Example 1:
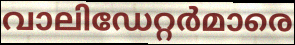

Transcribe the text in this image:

വാലിഡേറ്റർമാരെ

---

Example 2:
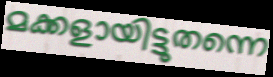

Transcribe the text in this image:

മക്കളായിട്ടുതന്നെ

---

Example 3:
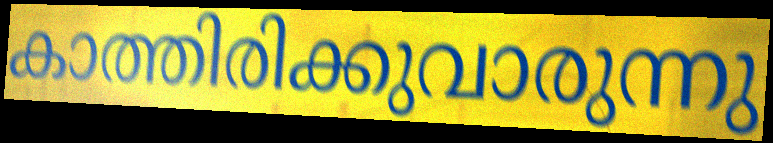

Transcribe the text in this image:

കാത്തിരിക്കുവാരുന്നു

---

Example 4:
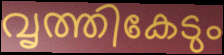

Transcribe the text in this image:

വൃത്തികേടും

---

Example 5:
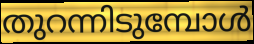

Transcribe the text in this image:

തുറന്നിടുമ്പോൾ